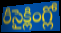
రీసైక్లింగ్లో